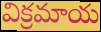
విక్రమాయ